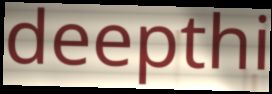
deepthi